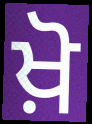
ਖ਼ੋ